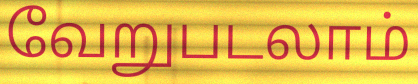
வேறுபடலாம்